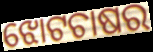
ଝୋଟଚାଷର